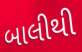
બાલીથી